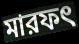
মারফৎ